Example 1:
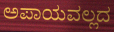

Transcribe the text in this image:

ಅಪಾಯವಲ್ಲದ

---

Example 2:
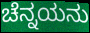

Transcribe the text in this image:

ಚೆನ್ನಯನು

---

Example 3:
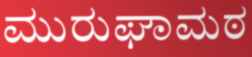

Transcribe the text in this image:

ಮುರುಘಾಮಠ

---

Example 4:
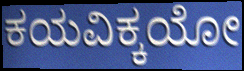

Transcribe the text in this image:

ಕಯವಿಕ್ಕಯೋ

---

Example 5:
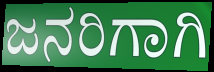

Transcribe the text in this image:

ಜನರಿಗಾಗಿ